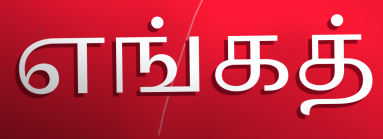
எங்கத்